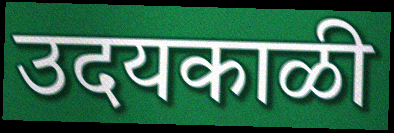
उदयकाळी